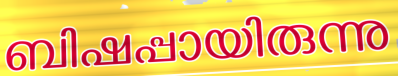
ബിഷപ്പായിരുന്നു